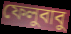
ফেলুবাবু